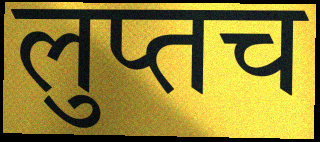
लुप्तच